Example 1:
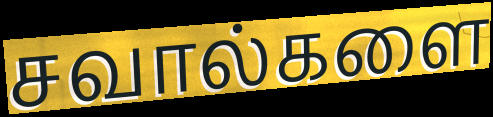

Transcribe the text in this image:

சவால்களை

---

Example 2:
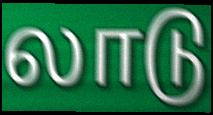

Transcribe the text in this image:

லாடு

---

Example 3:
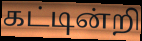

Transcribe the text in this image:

கட்டின்றி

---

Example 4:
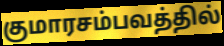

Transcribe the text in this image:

குமாரசம்பவத்தில்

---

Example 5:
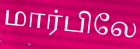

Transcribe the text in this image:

மார்பிலே